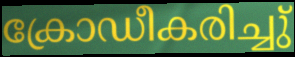
ക്രോഡീകരിച്ചു്